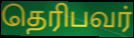
தெரிபவர்